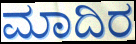
ಮಾದಿರ